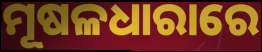
ମୂଷଳଧାରାରେ